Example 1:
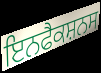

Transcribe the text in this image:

ਇਨਫੈਕਸ਼ਨਸ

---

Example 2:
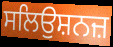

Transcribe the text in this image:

ਸਲਿਉਸ਼ਨਜ਼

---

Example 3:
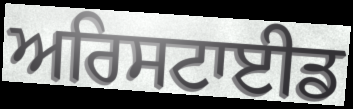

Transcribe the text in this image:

ਅਰਿਸਟਾਈਡ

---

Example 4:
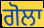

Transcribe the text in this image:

ਗੋਲਾ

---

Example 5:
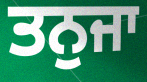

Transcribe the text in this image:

ਤਨੁਜਾ